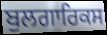
ਬੁਲਗਾਰਿਕਸ